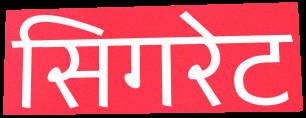
सिगरेट